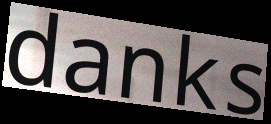
danks